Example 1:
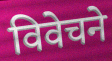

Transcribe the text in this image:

विवेचने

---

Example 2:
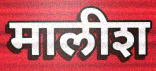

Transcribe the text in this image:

मालीश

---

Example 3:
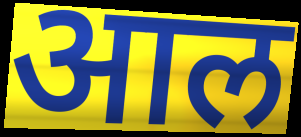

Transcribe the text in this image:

आल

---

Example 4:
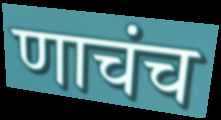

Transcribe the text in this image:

णाचंच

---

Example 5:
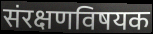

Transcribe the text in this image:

संरक्षणविषयक